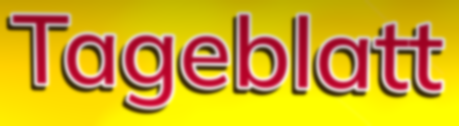
Tageblatt